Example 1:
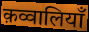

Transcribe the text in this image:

क़व्वालियाँ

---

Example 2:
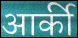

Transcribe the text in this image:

आर्की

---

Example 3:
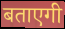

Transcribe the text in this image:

बताएगी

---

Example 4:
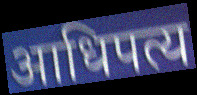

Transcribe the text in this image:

आधिपत्य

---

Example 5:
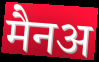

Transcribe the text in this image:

मैनअ